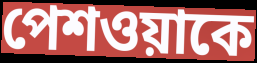
পেশওয়াকে